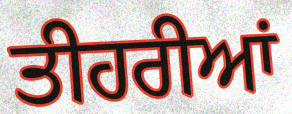
ਤੀਹਰੀਆਂ